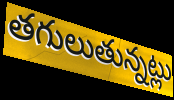
తగులుతున్నట్లు